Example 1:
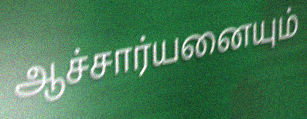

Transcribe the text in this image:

ஆச்சார்யனையும்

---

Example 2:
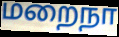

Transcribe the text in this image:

மறைநா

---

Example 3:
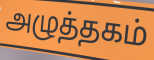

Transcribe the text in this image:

அழுத்தகம்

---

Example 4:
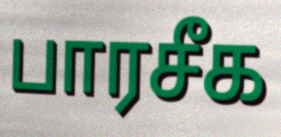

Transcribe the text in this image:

பாரசீக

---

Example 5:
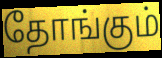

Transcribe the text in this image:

தோங்கும்